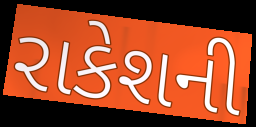
રાકેશની